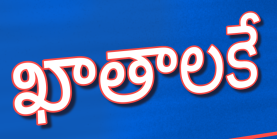
ఖాతాలకే